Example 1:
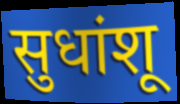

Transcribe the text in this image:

सुधांशू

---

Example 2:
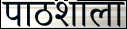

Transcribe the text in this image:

पाठशाला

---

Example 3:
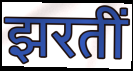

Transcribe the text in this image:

झरतीं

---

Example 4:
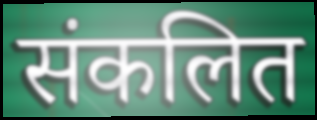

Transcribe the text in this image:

संकलित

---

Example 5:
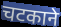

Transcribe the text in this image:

चटकाने